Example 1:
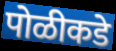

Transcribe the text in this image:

पोळीकडे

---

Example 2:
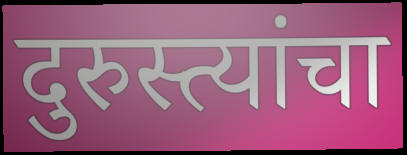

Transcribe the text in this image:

दुरुस्त्यांचा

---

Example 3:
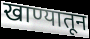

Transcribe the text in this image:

खाण्यातून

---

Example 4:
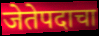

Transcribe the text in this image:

जेतेपदाचा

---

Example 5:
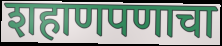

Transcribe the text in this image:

शहाणपणाचा